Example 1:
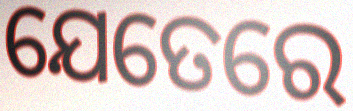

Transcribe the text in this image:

ଯେତେରେ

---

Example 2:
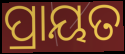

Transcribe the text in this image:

ପ୍ରାୟତ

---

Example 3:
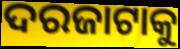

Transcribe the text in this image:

ଦରଜାଟାକୁ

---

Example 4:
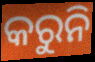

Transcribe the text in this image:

କରୁନି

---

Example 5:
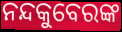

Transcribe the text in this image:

ନନ୍ଦକୁବେରଙ୍କ